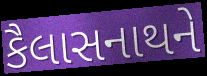
કૈલાસનાથને